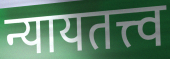
न्यायतत्त्व